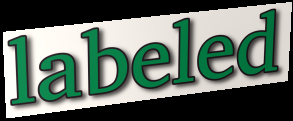
labeled